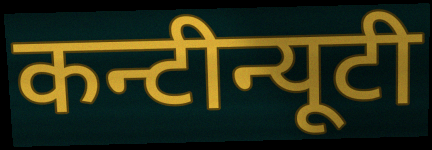
कन्टीन्यूटी